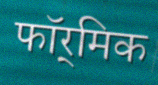
फॉर्मिक